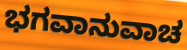
ಭಗವಾನುವಾಚ